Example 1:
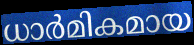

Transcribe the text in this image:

ധാർമികമായ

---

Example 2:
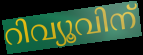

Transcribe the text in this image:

റിവ്യൂവിന്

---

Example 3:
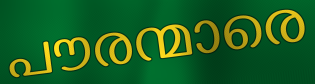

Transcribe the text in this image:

പൗരന്മാരെ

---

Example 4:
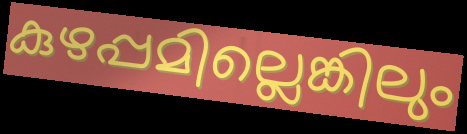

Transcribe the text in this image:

കുഴപ്പമില്ലെങ്കിലും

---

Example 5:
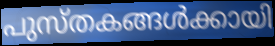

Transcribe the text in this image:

പുസ്തകങ്ങൾക്കായി